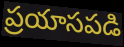
ప్రయాసపడి